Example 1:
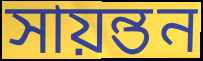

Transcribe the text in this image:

সায়ন্তন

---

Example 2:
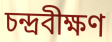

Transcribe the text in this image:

চন্দ্রবীক্ষণ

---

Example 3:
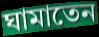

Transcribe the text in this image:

ঘামাতেন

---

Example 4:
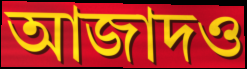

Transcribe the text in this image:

আজাদও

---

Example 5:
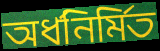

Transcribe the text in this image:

অর্ধনির্মিত